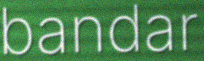
bandar